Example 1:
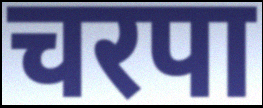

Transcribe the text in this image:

चरपा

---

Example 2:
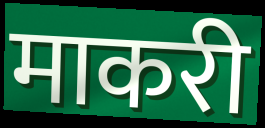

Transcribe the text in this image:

माकरी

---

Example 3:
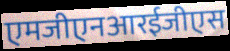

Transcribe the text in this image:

एमजीएनआरईजीएस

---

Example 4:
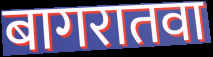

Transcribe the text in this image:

बागरातवा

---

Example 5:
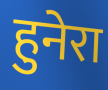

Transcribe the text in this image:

हुनेरा